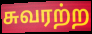
சுவரற்ற